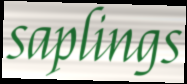
saplings